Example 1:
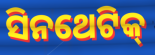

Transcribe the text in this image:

ସିନଥେଟିକ୍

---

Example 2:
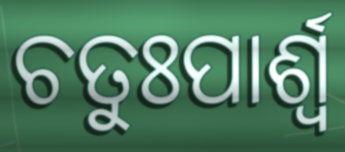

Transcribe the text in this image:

ଚତୁଃପାର୍ଶ୍ବ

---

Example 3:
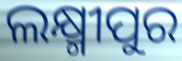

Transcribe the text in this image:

ଲକ୍ଷ୍ମୀପୁର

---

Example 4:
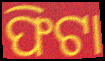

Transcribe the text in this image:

ଫିଟା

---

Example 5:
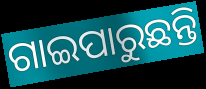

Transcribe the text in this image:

ଗାଇପାରୁଛନ୍ତି